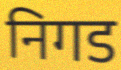
निगड